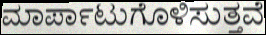
ಮಾರ್ಪಾಟುಗೊಳಿಸುತ್ತವೆ